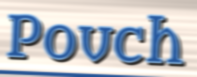
Pouch